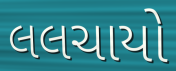
લલચાયો